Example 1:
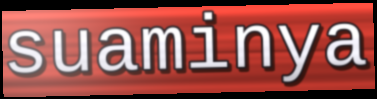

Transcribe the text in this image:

suaminya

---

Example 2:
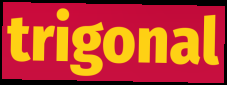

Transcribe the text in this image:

trigonal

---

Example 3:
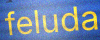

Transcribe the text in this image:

feluda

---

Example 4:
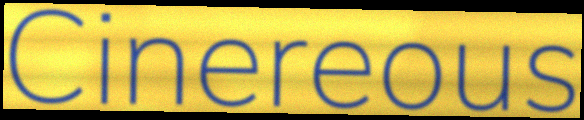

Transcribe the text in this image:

Cinereous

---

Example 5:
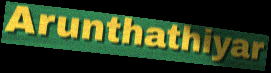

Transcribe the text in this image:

Arunthathiyar